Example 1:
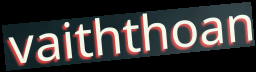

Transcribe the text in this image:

vaiththoan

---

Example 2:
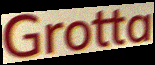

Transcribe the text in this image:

Grotta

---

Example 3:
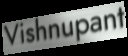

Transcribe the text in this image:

Vishnupant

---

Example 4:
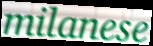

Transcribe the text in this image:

milanese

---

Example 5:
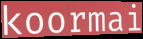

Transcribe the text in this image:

koormai